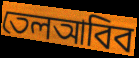
তেলআবিব